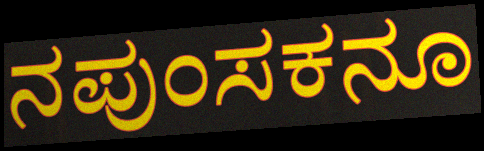
ನಪುಂಸಕನೂ